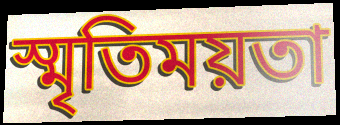
স্মৃতিময়তা